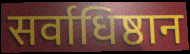
सर्वाधिष्ठान